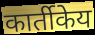
कार्तीकेय